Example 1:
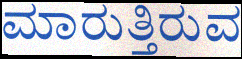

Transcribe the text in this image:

ಮಾರುತ್ತಿರುವ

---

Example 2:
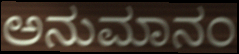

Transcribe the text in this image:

ಅನುಮಾನಂ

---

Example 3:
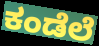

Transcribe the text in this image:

ಕಂಡೆಲೆ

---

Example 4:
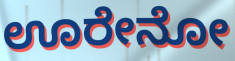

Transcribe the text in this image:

ಊರೇನೋ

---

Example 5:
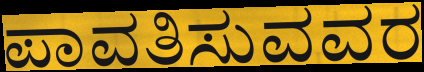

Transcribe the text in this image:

ಪಾವತಿಸುವವರ